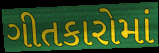
ગીતકારોમાં